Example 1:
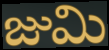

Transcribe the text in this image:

జుమి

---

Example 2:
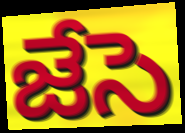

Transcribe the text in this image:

జేసె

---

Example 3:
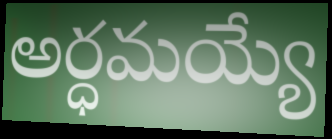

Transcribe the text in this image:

అర్ధమయ్యే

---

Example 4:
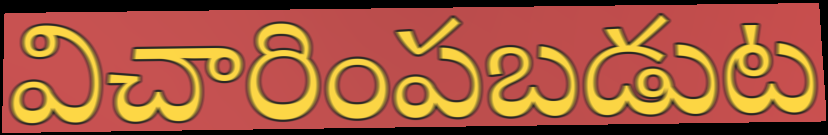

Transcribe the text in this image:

విచారింపబడుట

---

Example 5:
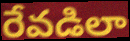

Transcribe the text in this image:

రేవడిలా